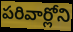
పరివార్లోని